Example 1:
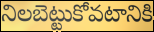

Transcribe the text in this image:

నిలబెట్టుకోవటానికి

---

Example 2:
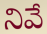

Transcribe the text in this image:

నివే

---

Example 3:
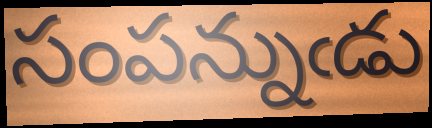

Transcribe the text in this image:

సంపన్నుఁడు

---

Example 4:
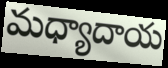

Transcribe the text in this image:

మధ్యాదాయ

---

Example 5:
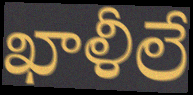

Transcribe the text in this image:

ఖాళీలే